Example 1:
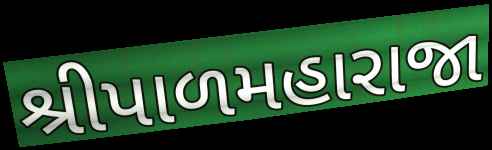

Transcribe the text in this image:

શ્રીપાળમહારાજા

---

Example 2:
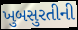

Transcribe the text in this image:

ખુબસુરતીની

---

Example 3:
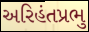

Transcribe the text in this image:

અરિહંતપ્રભુ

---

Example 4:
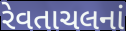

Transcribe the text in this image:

રેવતાચલનાં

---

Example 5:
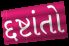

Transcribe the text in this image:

દ્દષ્ટાંતો